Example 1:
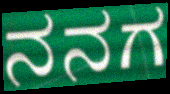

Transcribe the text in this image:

ನನಗ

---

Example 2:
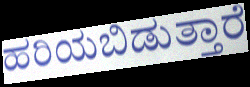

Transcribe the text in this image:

ಹರಿಯಬಿಡುತ್ತಾರೆ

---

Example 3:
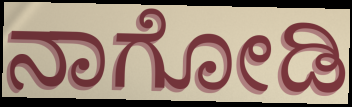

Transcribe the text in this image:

ನಾಗೋಡಿ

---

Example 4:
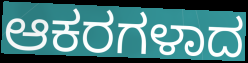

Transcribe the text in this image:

ಆಕರಗಳಾದ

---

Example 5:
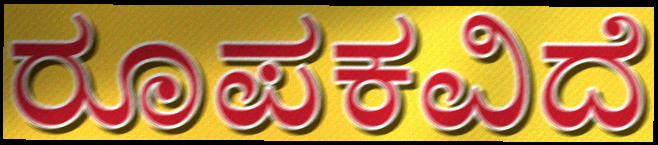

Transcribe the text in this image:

ರೂಪಕವಿದೆ